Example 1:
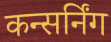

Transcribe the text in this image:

कन्सर्निंग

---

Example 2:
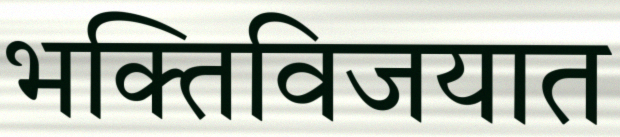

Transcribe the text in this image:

भक्तिविजयात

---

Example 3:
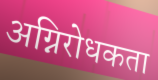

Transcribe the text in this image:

अग्निरोधकता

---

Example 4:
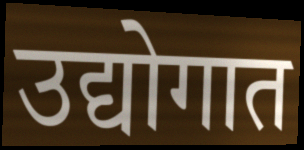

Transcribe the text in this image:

उद्योगात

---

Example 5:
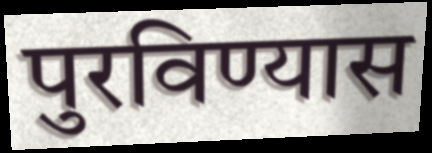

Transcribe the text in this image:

पुरविण्यास